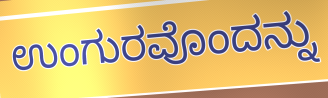
ಉಂಗುರವೊಂದನ್ನು